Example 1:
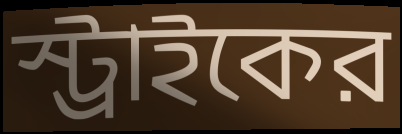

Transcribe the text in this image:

স্ট্রাইকের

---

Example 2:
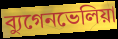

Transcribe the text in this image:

ব্যুগেনভেলিয়া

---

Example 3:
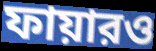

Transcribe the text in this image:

ফায়ারও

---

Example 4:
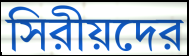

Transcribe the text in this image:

সিরীয়দের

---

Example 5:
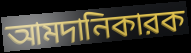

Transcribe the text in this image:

আমদানিকারক